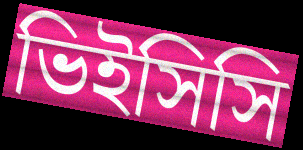
ভিইসিসি